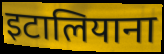
इटालियाना